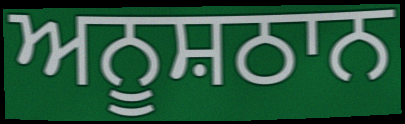
ਅਨੂਸ਼ਠਾਨ